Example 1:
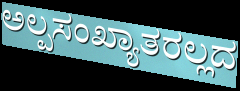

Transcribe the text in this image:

ಅಲ್ಪಸಂಖ್ಯಾತರಲ್ಲದ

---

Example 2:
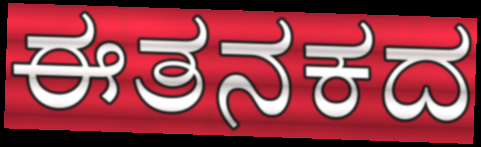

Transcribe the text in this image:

ಈತನಕದ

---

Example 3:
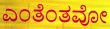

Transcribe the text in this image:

ಎಂತೆಂತವೋ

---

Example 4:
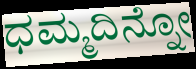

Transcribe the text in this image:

ಧಮ್ಮದಿನ್ನೋ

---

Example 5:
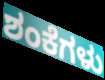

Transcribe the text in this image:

ಶಂಕೆಗಳು